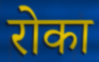
रोका